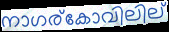
നാഗര്കോവിലില്